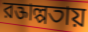
রক্তাল্পতায়